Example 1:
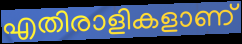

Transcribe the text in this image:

എതിരാളികളാണ്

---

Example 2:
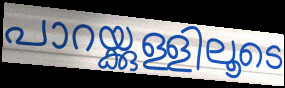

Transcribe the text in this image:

പാറയ്ക്കുള്ളിലൂടെ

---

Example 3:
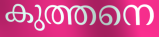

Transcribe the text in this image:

കുത്തനെ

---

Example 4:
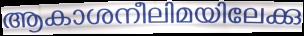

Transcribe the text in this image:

ആകാശനീലിമയിലേക്കു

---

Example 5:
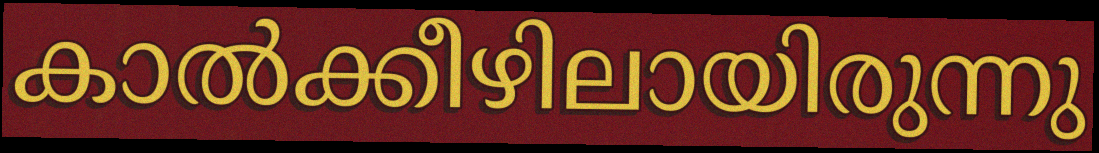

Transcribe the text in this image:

കാൽക്കീഴിലായിരുന്നു